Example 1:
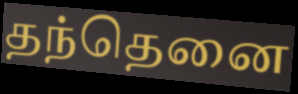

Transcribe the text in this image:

தந்தெனை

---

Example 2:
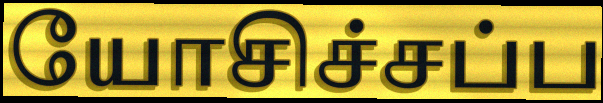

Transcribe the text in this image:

யோசிச்சப்ப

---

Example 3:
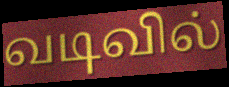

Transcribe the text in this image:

வடிவில்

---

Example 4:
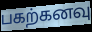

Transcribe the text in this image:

பகற்கனவு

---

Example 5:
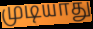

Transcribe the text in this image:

முடியாது